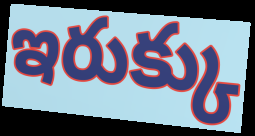
ఇరుక్కు